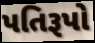
પતિરૂપો